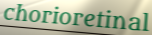
chorioretinal